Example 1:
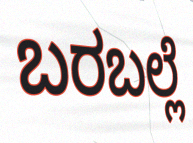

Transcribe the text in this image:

ಬರಬಲ್ಲೆ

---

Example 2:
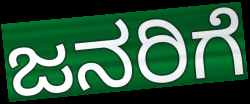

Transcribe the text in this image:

ಜನರಿಗೆ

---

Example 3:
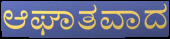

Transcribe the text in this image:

ಆಘಾತವಾದ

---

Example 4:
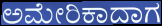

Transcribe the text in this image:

ಅಮೇರಿಕಾದಾಗ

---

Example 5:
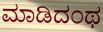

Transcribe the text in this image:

ಮಾಡಿದಂಥ